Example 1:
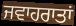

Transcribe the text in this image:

ਜਵਾਹਰਾਤਾਂ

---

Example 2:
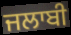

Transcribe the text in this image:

ਜਲਾਬੀ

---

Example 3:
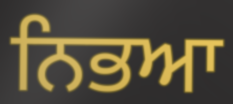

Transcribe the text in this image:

ਨਿਭਆ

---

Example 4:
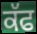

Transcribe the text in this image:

ਕੱਫ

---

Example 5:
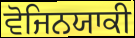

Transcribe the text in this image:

ਵੋਜਿਨਯਾਕੀ